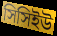
সিসিইউ